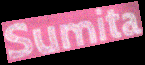
Sumita